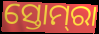
ସ୍ତୋମ୍‌ରା